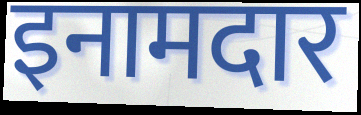
इनामदार